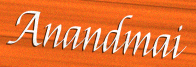
Anandmai